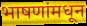
भाषणांमधून